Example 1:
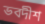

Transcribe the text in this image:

ভবদীশ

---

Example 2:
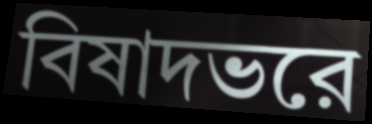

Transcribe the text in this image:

বিষাদভরে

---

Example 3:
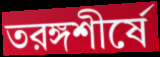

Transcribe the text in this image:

তরঙ্গশীর্ষে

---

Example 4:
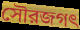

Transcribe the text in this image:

সৌরজগৎ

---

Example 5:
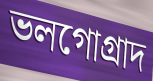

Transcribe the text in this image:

ভলগোগ্রাদ